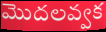
మొదలవ్వక